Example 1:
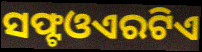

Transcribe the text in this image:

ସଫ୍ଟଓଏରଟିଏ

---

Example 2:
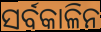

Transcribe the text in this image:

ସର୍ବକାଳିନ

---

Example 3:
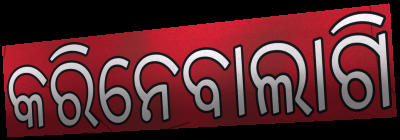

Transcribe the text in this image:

କରିନେବାଲାଗି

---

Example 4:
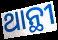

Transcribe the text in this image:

ଥାନ୍ଥୀ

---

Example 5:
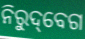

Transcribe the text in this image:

ନିରୁଦ୍‌ବେଗ